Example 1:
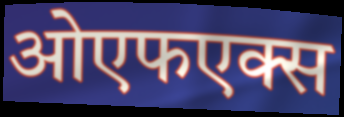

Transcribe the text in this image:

ओएफएक्स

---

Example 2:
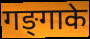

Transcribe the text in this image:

गङ्गाके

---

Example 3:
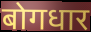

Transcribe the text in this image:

बोगधार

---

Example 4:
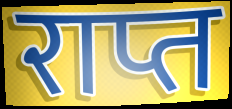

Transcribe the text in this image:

राप्त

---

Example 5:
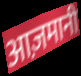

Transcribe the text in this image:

आज़मानी